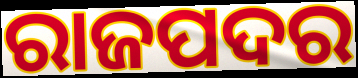
ରାଜପଦର